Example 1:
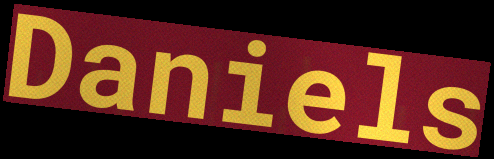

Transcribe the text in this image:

Daniels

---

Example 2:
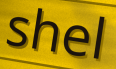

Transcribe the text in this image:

shel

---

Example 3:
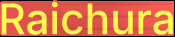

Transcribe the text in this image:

Raichura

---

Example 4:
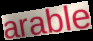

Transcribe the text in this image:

arable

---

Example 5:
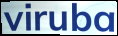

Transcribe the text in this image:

viruba